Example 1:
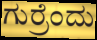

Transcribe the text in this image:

ಗುರ್ರೆಂದು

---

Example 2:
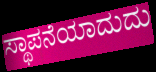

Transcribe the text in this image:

ಸ್ಥಾಪನೆಯಾದುದು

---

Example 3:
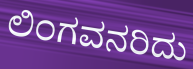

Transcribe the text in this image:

ಲಿಂಗವನರಿದು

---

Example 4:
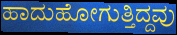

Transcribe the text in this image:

ಹಾದುಹೋಗುತ್ತಿದ್ದವು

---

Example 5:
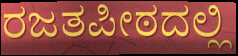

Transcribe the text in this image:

ರಜತಪೀಠದಲ್ಲಿ